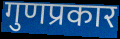
गुणप्रकार